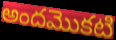
అందమొకటి